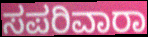
ಸಪರಿವಾರಾ